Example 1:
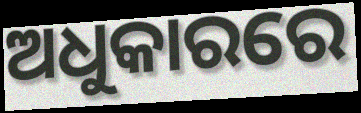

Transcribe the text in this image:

ଅଧୁକାରରେ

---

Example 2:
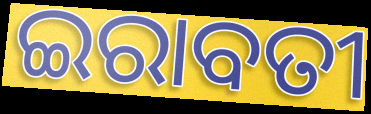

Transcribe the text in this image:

ଇରାବତୀ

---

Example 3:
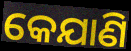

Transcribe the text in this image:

କେଯାଣି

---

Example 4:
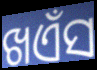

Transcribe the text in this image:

ଖଏଁସ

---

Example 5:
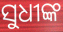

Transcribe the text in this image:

ସୁଧୀଙ୍କ